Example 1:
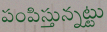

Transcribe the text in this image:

పంపిస్తున్నట్టు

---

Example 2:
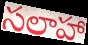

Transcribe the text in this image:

సలాహా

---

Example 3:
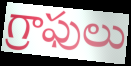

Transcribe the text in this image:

గ్రాఫులు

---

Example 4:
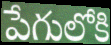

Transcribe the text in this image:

పేగులోకి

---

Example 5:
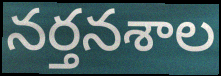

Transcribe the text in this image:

నర్తనశాల